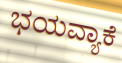
ಭಯವ್ಯಾಕೆ